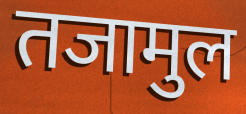
तजामुल